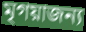
মৃগয়াজন্য